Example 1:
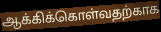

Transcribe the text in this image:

ஆக்கிக்கொள்வதற்காக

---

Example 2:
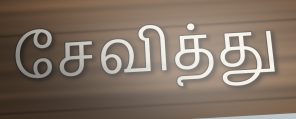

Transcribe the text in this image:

சேவித்து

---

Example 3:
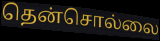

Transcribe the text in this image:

தென்சொல்லை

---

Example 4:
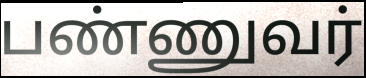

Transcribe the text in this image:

பண்ணுவர்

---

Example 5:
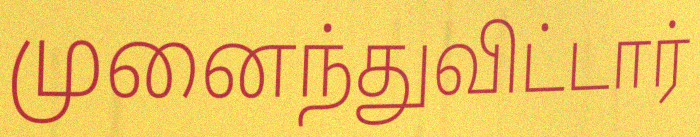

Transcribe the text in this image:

முனைந்துவிட்டார்